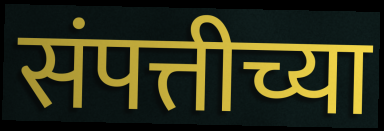
संपत्तीच्या